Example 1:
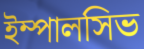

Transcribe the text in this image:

ইম্পালসিভ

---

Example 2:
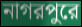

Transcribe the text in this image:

নাগরপুরে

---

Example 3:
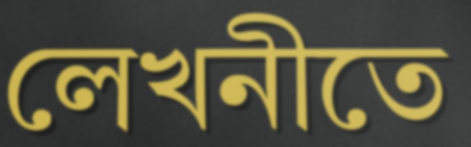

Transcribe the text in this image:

লেখনীতে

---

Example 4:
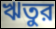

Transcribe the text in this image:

ঋতুর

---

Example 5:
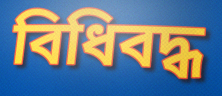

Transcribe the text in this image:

বিধিবদ্ধ